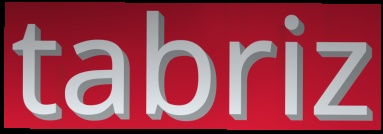
tabriz